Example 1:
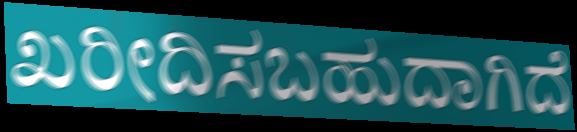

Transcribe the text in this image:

ಖರೀದಿಸಬಹುದಾಗಿದೆ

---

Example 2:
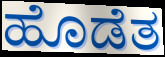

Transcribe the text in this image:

ಹೊಡೆತ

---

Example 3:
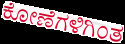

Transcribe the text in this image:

ಕೋಣೆಗಳಿಗಿಂತ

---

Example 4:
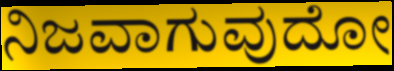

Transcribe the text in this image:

ನಿಜವಾಗುವುದೋ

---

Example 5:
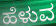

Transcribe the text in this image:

ಹೆಳುವ